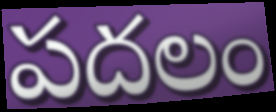
పదలం